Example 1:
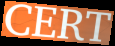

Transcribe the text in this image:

CERT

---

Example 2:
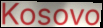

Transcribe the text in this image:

Kosovo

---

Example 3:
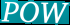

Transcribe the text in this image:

POW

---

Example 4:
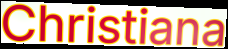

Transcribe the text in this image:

Christiana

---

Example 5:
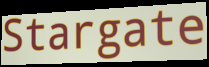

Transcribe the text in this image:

Stargate